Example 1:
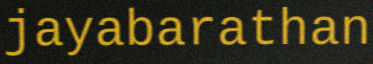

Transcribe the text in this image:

jayabarathan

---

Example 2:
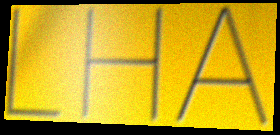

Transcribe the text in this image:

LHA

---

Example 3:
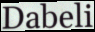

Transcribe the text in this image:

Dabeli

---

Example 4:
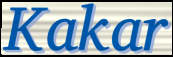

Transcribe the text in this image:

Kakar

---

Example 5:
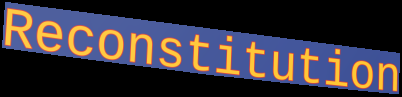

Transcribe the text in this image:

Reconstitution